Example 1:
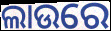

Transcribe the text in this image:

ଲାଉରେ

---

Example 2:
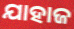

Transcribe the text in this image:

ଯାହାଜ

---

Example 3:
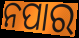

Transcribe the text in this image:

ନପାର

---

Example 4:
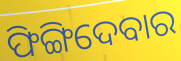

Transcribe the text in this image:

ଫିଙ୍ଗିଦେବାର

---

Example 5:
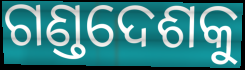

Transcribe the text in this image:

ଗଣ୍ଡଦେଶକୁ